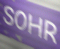
SOHR